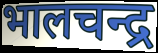
भालचन्द्र